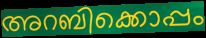
അറബിക്കൊപ്പം